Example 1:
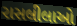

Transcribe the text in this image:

રાસલીલાઓ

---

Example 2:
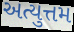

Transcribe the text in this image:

અત્યુત્તમ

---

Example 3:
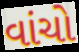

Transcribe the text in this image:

વાંચો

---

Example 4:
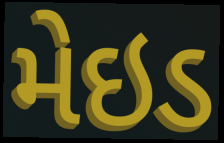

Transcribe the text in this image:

મેઇડ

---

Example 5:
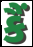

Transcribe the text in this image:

કૈં